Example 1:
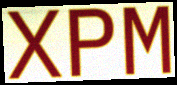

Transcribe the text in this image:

XPM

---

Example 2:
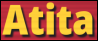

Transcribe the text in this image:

Atita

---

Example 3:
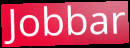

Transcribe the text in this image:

Jobbar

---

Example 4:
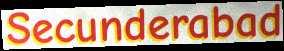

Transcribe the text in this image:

Secunderabad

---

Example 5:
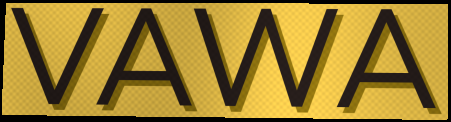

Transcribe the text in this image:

VAWA